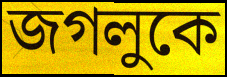
জগলুকে